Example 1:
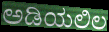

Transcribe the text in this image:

ಅಡಿಯಲಿಲ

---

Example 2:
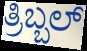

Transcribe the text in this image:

ತ್ರಿಬ್ಬಲ್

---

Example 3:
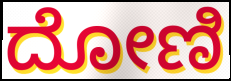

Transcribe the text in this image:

ದೋಣಿ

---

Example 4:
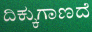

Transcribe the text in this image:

ದಿಕ್ಕುಗಾಣದೆ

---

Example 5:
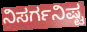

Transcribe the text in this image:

ನಿಸರ್ಗನಿಷ್ಟ